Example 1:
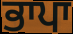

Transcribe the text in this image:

ਭਾਪਾ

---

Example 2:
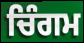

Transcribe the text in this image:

ਚਿੰਗਮ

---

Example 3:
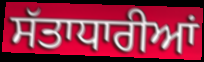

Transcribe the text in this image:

ਸੱਤਾਧਾਰੀਆਂ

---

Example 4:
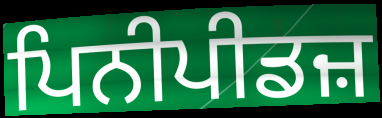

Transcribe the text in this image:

ਪਿਨੀਪੀਡਜ਼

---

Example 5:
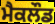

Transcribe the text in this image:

ਮੈਕਲੌਡ